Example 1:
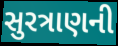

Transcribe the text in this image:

સુરત્રાણની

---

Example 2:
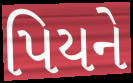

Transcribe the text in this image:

પિયને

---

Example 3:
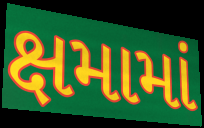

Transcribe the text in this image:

ક્ષમામાં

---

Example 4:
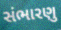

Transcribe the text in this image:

સંભારણુ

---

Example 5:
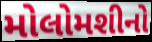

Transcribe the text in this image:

મોલોમશીનો